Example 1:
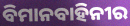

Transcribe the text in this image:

ବିମାନବାହିନୀର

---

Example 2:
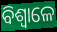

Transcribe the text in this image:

ବିଶ୍ଵାଳେ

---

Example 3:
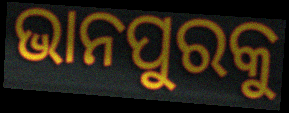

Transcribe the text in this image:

ଭାନପୁରକୁ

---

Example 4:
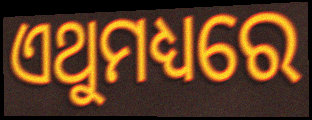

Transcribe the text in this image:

ଏଥୁମଧ୍ୟରେ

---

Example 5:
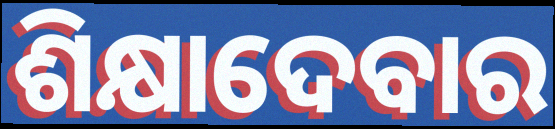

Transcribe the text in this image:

ଶିକ୍ଷାଦେବାର